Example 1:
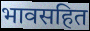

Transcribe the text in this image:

भावसहित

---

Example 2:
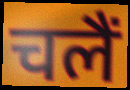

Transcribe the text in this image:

चलैं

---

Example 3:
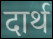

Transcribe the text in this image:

दार्थ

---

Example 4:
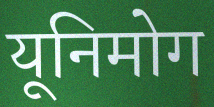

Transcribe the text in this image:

यूनिमोग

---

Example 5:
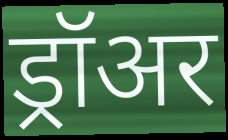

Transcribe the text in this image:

ड्रॉअर